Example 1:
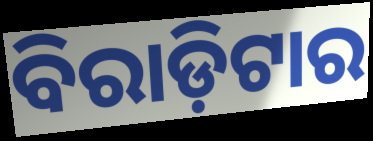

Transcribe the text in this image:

ବିରାଡ଼ିଟାର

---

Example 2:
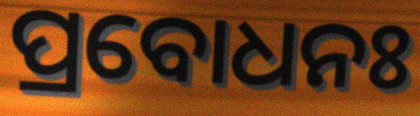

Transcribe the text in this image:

ପ୍ରବୋଧନଃ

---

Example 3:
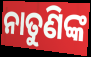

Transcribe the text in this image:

ନାତୁଣିଙ୍କ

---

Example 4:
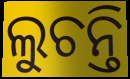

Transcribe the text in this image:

ଲୁଚନ୍ତି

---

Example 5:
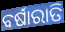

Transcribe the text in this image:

ବର୍ଷାରାତି